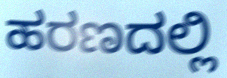
ಹರಣದಲ್ಲಿ